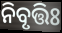
ନିବୃତ୍ତିଃ